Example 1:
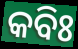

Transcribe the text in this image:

କବିଃ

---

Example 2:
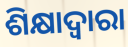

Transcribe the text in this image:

ଶିକ୍ଷାଦ୍ୱାରା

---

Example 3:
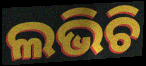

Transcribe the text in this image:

ଲଭିଚି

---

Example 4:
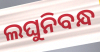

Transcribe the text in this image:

ଲଘୁନିବନ୍ଧ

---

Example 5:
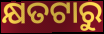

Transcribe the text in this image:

କ୍ଷତଟାରୁ